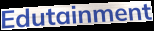
Edutainment